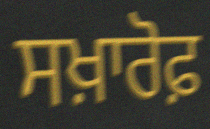
ਸਖ਼ਾਰੋਫ਼